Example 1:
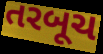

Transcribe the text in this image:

તરબૂચ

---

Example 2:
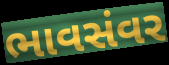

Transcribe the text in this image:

ભાવસંવર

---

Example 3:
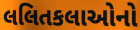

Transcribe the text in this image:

લલિતકલાઓનો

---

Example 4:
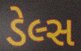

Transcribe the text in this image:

ડેલ્સ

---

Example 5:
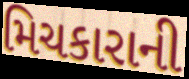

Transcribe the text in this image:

મિચકારાની